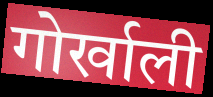
गोर्खाली